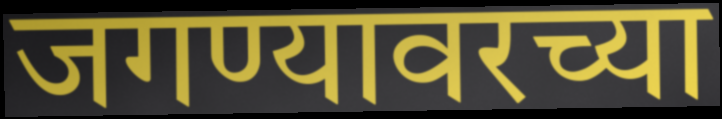
जगण्यावरच्या